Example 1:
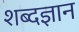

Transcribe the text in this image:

शब्दज्ञान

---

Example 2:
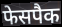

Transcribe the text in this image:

फेसपैक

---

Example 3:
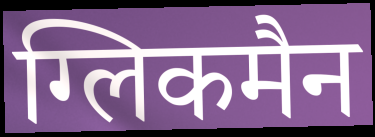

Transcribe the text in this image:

ग्लिकमैन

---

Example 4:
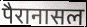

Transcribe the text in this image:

पैरानासल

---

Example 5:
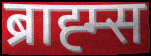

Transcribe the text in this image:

ब्राह्म्स